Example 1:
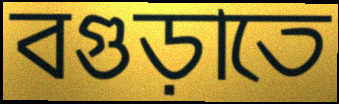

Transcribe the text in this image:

বগুড়াতে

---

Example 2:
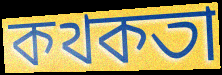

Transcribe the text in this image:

কথকতা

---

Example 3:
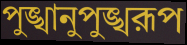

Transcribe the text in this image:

পুঙ্খানুপুঙ্খরূপ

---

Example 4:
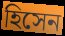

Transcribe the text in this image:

হিসেন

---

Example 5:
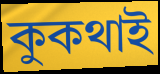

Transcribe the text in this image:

কুকথাই